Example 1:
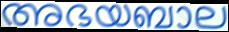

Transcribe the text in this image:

അഭയബാല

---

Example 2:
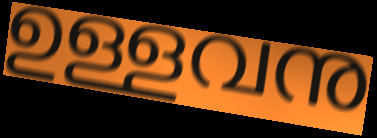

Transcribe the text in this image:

ഉള്ളവനു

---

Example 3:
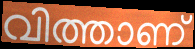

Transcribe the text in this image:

വിത്താണ്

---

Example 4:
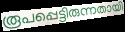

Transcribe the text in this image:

രൂപപ്പെട്ടിരുന്നതായി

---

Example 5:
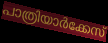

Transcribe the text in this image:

പാത്രിയാർക്കേസ്